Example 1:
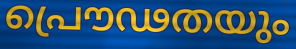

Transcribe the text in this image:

പ്രൌഢതയും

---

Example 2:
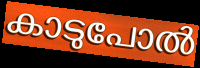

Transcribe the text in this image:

കാടുപോൽ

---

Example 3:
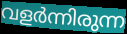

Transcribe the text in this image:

വളർന്നിരുന്ന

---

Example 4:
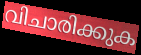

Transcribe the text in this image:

വിചാരിക്കുക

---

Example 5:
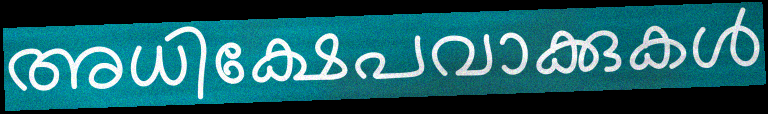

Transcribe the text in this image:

അധിക്ഷേപവാക്കുകൾ